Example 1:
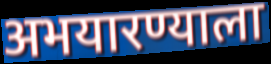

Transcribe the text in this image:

अभयारण्याला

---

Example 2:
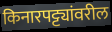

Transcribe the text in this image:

किनारपट्ट्यांवरील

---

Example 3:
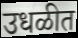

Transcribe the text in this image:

उधळीत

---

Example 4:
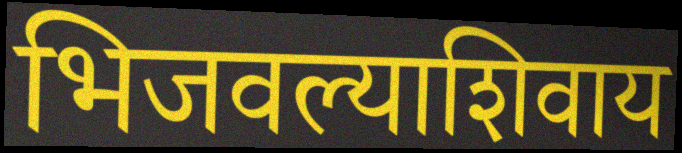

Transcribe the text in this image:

भिजवल्याशिवाय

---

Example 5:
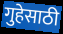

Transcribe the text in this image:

गुहेसाठी